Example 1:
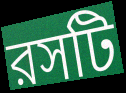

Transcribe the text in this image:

রসটি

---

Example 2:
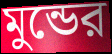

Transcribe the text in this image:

মুন্ডের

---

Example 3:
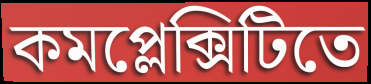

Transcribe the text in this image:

কমপ্লেক্সিটিতে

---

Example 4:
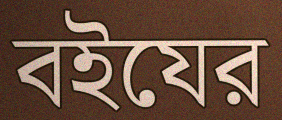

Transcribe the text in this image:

বইযের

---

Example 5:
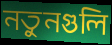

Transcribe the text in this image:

নতুনগুলি